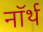
नॉर्थ